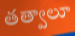
తత్వాలూ